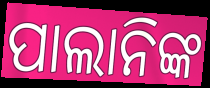
ପାଲାନିଙ୍କ